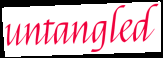
untangled